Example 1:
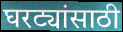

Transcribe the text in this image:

घरट्यांसाठी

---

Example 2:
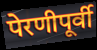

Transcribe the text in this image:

पेरणीपूर्वी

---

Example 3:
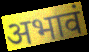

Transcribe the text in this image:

अभावं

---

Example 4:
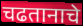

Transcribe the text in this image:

चढतानाचे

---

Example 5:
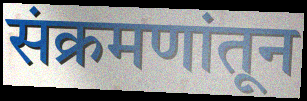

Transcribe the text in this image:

संक्रमणांतून